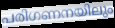
പരിഗണനയിലും